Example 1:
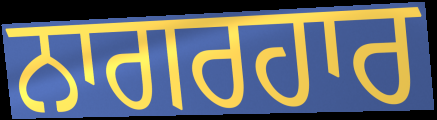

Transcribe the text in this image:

ਨਾਗਰਹਾਰ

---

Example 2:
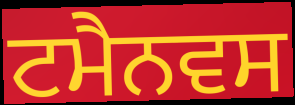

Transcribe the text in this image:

ਟਮੈਨਵਸ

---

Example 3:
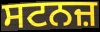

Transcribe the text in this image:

ਸਟਨਜ਼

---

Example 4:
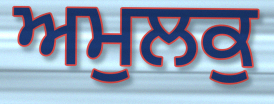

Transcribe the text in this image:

ਅਮੁਲਕੁ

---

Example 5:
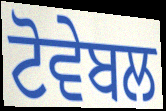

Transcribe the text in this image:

ਟੋਵੇਬਲ